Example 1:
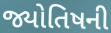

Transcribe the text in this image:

જ્યોતિષની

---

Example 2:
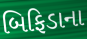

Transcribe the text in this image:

બિફિડાના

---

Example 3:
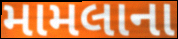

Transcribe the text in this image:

મામલાના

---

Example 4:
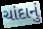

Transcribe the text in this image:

ચાંદાનું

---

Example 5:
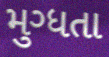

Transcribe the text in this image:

મુગ્ધતા